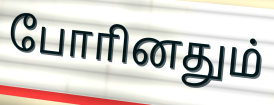
போரினதும்